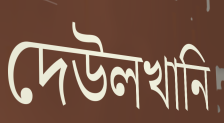
দেউলখানি